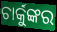
ଚାର୍କୁଙ୍କର